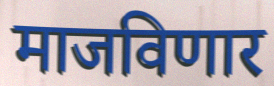
माजविणार